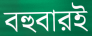
বহুবারই